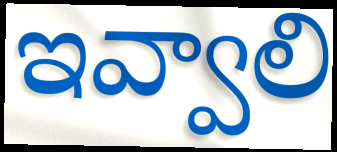
ఇవ్వాలి